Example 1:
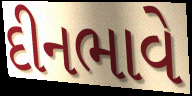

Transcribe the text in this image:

દીનભાવે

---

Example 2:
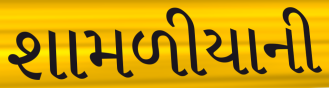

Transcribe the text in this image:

શામળીયાની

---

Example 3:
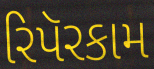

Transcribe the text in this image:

રિપૅરકામ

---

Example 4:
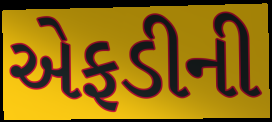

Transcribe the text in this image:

એફડીની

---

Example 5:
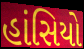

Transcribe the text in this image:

હાંસિયો